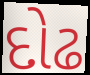
દોઢ